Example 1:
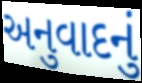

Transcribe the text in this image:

અનુવાદનું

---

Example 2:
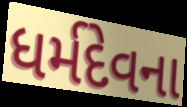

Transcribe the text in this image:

ધર્મદેવના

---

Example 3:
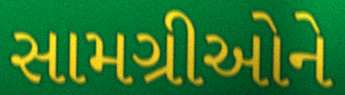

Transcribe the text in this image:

સામગ્રીઓને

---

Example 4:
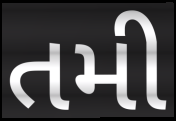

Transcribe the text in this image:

તમી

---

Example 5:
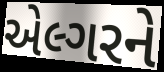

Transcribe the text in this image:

એલ્ગરને